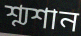
শ্মশান